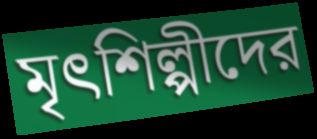
মৃৎশিল্পীদের